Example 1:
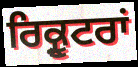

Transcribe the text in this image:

ਰਿਕ੍ਰੂਟਰਾਂ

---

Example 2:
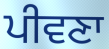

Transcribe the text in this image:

ਪੀਵਣਾ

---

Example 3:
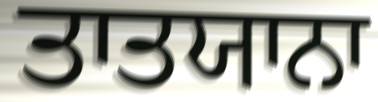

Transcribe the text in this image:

ਤਾਤਯਾਨਾ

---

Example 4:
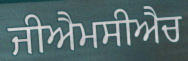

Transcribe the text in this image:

ਜੀਐਮਸੀਐਚ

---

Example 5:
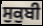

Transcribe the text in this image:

ਸੁਕੁਬੀ